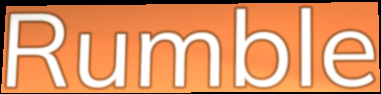
Rumble